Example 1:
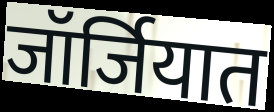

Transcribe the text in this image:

जॉर्जियात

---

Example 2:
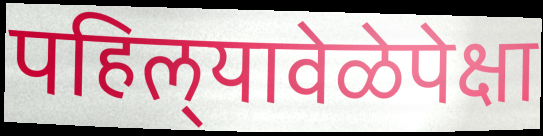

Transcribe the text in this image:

पहिल्यावेळेपेक्षा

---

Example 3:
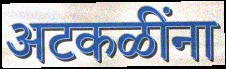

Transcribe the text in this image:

अटकळींना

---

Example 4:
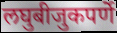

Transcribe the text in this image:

लघुबीजुकपर्णे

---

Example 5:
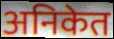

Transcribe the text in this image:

अनिकेत